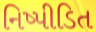
નિષ્પીડિત